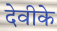
देवीके